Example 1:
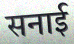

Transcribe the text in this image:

सनाई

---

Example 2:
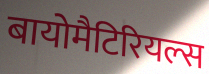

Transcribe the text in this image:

बायोमैटिरियल्स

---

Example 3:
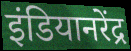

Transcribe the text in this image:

इंडियानरेंद्र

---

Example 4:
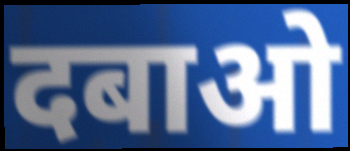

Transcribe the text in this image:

दबाओ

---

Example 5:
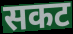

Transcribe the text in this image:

सकट